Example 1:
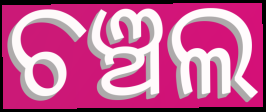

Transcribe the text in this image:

ଚଞ୍ଚଲ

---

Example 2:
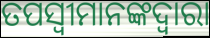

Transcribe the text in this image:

ତପସ୍ୱୀମାନଙ୍କଦ୍ୱାରା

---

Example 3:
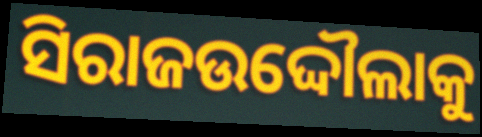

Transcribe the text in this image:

ସିରାଜଉଦ୍ଦୌଲାକୁ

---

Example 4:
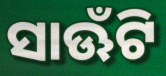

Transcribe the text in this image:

ସାଊଁଟି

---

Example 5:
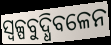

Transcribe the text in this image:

ସ୍ଵଳ୍ପବୁଦ୍ଧିବଳେନ